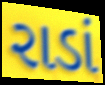
રાડાં